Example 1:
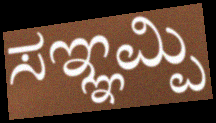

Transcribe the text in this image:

ಸಞ್ಞಮ್ಪಿ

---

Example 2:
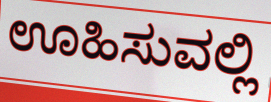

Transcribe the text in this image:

ಊಹಿಸುವಲ್ಲಿ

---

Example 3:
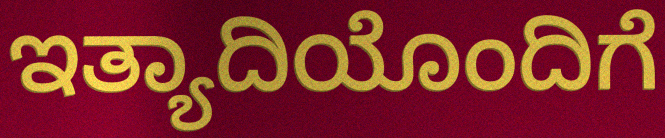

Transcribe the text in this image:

ಇತ್ಯಾದಿಯೊಂದಿಗೆ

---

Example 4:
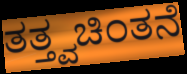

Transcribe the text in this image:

ತತ್ತ್ವಚಿಂತನೆ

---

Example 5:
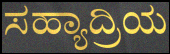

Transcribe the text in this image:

ಸಹ್ಯಾದ್ರಿಯ